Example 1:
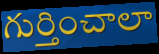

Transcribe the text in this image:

గుర్తించాలా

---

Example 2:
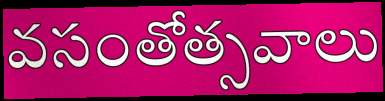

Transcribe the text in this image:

వసంతోత్సవాలు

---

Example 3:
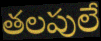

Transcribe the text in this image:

తలపులే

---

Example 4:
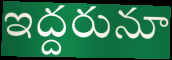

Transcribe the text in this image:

ఇద్దరునూ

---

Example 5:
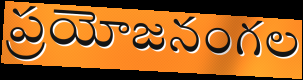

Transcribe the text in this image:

ప్రయోజనంగల